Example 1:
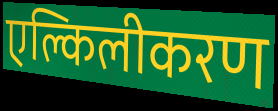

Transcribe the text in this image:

एल्किलीकरण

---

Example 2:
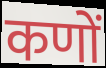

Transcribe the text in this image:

कणों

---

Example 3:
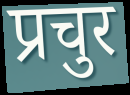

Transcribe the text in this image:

प्रचुर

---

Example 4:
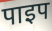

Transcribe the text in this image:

पाइप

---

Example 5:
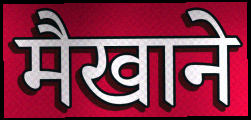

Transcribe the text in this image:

मैखाने